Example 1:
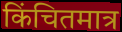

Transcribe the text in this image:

किंचितमात्र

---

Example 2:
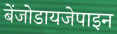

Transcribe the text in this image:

बेंजोडायजेपाइन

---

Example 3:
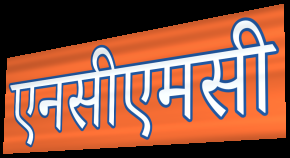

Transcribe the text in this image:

एनसीएमसी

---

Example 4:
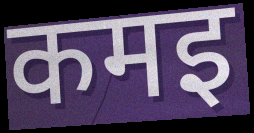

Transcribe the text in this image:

कमइ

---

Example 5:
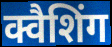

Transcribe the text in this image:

क्वैशिंग